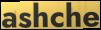
ashche